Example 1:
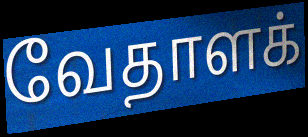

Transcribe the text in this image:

வேதாளக்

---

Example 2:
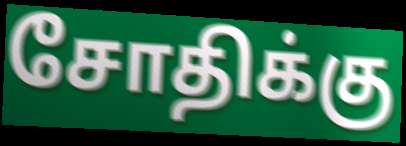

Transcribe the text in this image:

சோதிக்கு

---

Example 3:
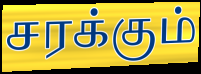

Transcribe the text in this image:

சரக்கும்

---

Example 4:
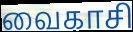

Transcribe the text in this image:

வைகாசி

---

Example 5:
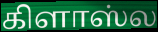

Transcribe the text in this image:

கிளாஸ்ல